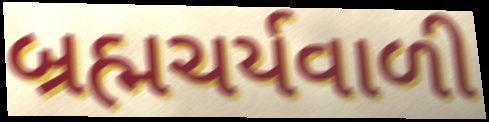
બ્રહ્મચર્યવાળી